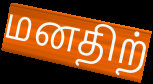
மனதிற்